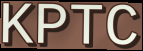
KPTC